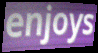
enjoys